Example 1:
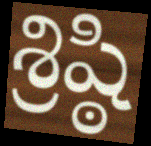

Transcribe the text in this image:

శ్రిష్ఠి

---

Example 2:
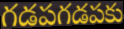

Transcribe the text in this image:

గడపగడపకు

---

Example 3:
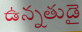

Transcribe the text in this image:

ఉన్నతుడై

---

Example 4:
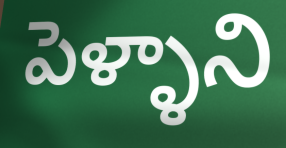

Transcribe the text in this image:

పెళ్ళాని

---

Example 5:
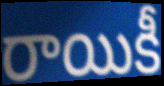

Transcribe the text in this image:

రాయికీ